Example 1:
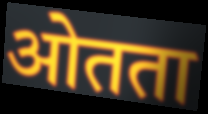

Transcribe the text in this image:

ओतता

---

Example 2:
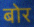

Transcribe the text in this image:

बोर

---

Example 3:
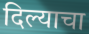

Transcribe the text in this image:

दिल्याचा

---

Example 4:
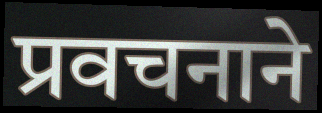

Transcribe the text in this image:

प्रवचनाने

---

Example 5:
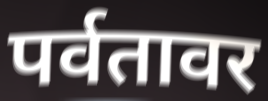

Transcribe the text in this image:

पर्वतावर